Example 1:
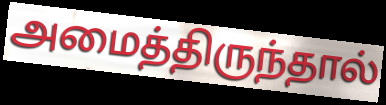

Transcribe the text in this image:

அமைத்திருந்தால்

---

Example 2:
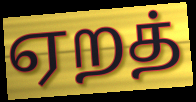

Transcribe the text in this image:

ஏறத்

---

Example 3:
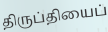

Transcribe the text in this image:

திருப்தியைப்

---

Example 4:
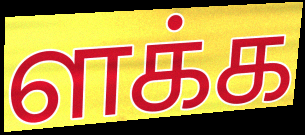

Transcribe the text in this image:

ளக்க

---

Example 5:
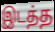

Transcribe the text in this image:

இடத்த